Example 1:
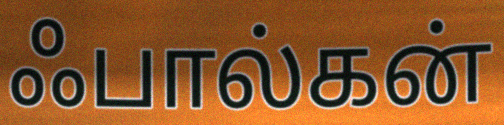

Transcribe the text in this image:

ஃபால்கன்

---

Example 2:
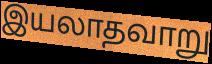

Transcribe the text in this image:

இயலாதவாறு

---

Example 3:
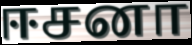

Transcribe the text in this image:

ஈசனா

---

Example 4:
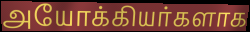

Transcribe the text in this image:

அயோக்கியர்களாக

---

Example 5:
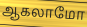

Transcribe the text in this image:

ஆகலாமோ